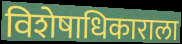
विशेषाधिकाराला